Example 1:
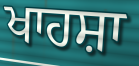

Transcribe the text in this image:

ਖਾਹਸ਼ਾ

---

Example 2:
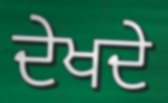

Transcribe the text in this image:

ਦੇਖਦੇ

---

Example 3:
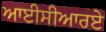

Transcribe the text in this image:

ਆਈਸੀਆਰਏ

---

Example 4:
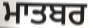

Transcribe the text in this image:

ਮਾਤਬਰ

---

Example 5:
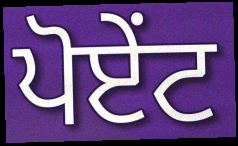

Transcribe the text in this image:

ਪੋਏਂਟ